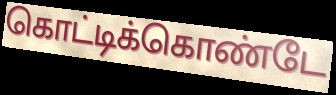
கொட்டிக்கொண்டே